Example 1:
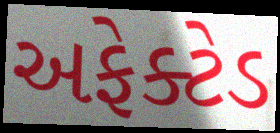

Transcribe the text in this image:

અફેક્ટેડ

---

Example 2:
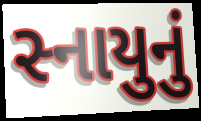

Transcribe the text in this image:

સ્નાયુનું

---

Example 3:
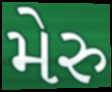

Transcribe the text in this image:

મેરુ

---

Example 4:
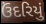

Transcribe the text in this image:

ઉંદરિયું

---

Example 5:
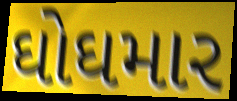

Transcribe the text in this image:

ઘોઘમાર